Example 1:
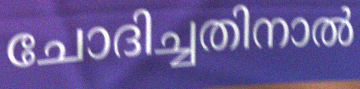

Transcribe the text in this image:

ചോദിച്ചതിനാൽ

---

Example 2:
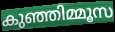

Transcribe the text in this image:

കുഞ്ഞിമ്മൂസ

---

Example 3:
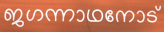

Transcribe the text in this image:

ജഗന്നാഥനോട്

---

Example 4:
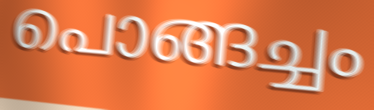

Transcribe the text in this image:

പൊങ്ങച്ചം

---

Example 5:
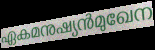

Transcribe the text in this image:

ഏകമനുഷ്യൻമുഖേന